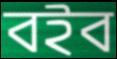
বইব